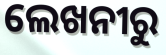
ଲେଖନୀରୁ